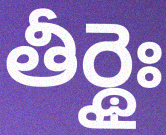
తీర్థైః